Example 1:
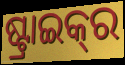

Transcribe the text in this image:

ଷ୍ଟ୍ରାଇକ୍‍ର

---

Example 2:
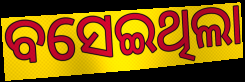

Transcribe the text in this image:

ବସେଇଥିଲା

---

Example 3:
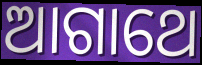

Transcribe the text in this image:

ଆଗାଥେ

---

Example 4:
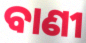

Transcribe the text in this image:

ବାଣୀ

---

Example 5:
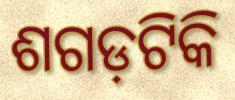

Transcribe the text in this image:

ଶଗଡ଼ଟିକି